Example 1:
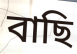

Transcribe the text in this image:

বাছি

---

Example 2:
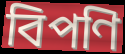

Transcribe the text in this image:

বিপণি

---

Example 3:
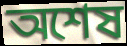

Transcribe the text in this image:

অশেষ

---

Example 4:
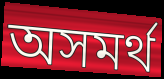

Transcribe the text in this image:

অসমৰ্থ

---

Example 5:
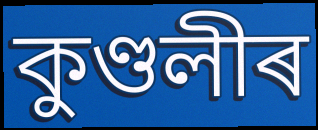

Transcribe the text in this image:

কুণ্ডলীৰ